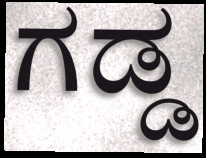
ಗಡ್ಡ